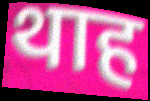
थाह